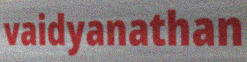
vaidyanathan